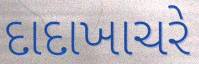
દાદાખાચરે